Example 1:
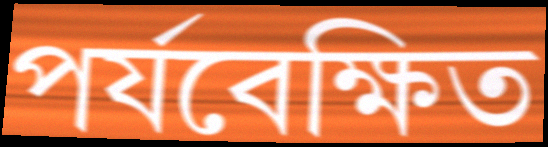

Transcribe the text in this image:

পৰ্যবেক্ষিত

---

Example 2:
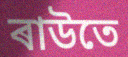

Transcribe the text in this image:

ৰাউতে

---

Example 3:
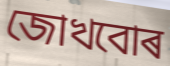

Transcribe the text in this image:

জোখবোৰ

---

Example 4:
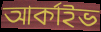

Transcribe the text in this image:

আৰ্কাইভ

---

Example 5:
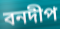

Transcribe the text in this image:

বনদীপ